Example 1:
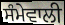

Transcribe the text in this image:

ਸੰਮੇਵਾਲੀ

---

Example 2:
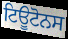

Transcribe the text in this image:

ਟਿਊਟੋਨਸ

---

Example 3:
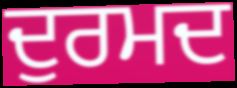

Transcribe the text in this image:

ਦੁਰਮਦ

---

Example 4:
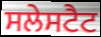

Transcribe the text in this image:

ਸਲੇਸਟੈਟ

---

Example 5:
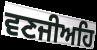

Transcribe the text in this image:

ਵਣਜੀਅਹਿ